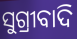
ସୁଗ୍ରୀବାଦି